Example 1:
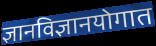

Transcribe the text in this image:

ज्ञानविज्ञानयोगात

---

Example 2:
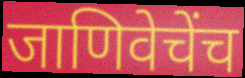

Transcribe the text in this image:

जाणिवेचेंच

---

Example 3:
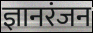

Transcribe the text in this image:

ज्ञानरंजन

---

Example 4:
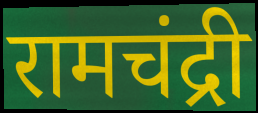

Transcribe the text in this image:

रामचंद्री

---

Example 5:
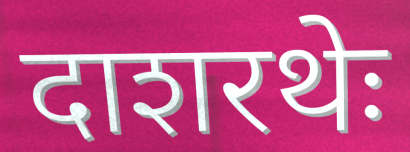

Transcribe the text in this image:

दाशरथेः